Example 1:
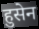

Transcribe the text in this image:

हुसेन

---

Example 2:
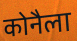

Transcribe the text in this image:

कोनैला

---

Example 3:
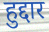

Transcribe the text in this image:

हुद्दार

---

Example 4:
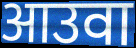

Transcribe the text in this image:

आउवा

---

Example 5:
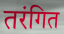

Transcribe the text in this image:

तरंगित